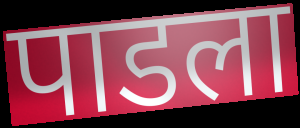
पाडला